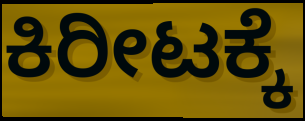
ಕಿರೀಟಕ್ಕೆ